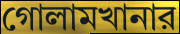
গোলামখানার